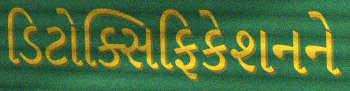
ડિટોક્સિફિકેશનને